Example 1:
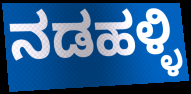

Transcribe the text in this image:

ನಡಹಳ್ಳಿ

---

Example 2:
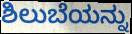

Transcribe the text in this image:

ಶಿಲುಬೆಯನ್ನು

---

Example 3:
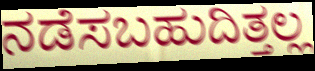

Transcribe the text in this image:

ನಡೆಸಬಹುದಿತ್ತಲ್ಲ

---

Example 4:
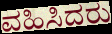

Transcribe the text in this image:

ವಹಿಸಿದರು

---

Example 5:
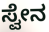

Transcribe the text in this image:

ಸ್ವೇನ